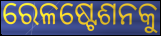
ରେଳଷ୍ଟେଶନକୁ